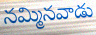
నమ్మినవాడు